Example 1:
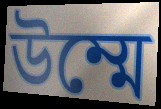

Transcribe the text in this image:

উম্মে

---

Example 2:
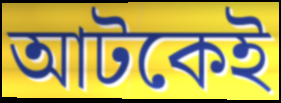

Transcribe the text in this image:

আটকেই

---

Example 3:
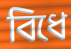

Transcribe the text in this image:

বিধে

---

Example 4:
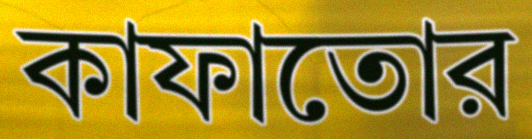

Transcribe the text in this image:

কাফাতোর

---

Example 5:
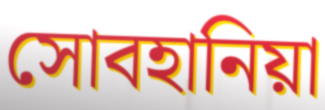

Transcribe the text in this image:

সোবহানিয়া